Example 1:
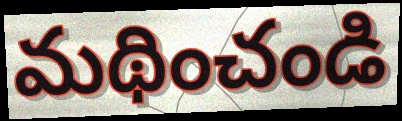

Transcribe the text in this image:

మథించండి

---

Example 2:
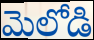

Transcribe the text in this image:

మెలోడి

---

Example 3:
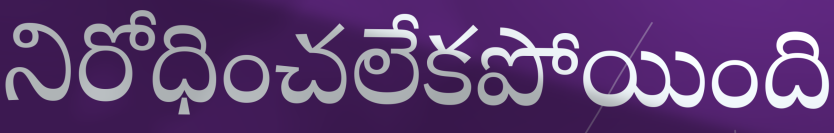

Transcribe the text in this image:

నిరోధించలేకపోయింది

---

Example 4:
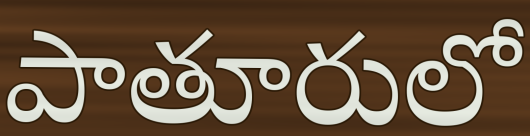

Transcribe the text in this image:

పాతూరులో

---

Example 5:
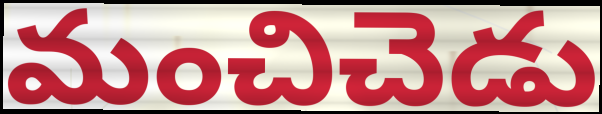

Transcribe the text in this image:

మంచిచెడు